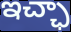
ఇచ్ఛా